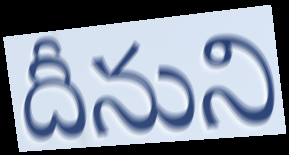
దీనుని